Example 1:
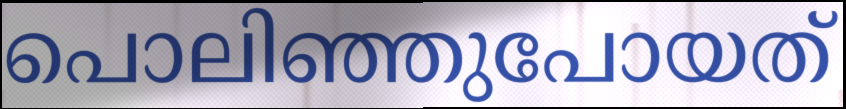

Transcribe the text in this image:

പൊലിഞ്ഞുപോയത്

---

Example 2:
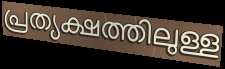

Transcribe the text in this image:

പ്രത്യക്ഷത്തിലുള്ള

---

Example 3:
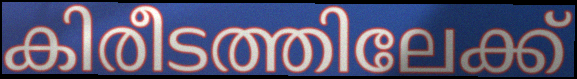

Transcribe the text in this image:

കിരീടത്തിലേക്ക്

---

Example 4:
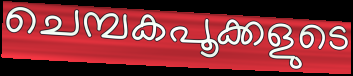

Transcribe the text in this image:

ചെമ്പകപൂക്കളുടെ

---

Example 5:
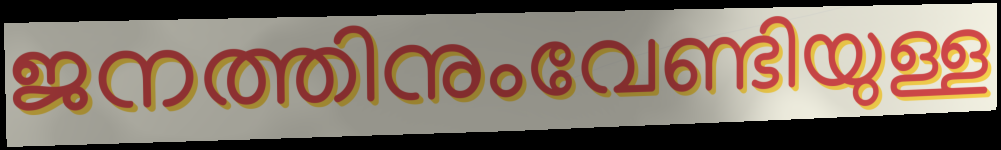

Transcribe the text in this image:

ജനത്തിനുംവേണ്ടിയുള്ള